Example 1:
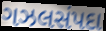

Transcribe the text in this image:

ગઝલસંપદા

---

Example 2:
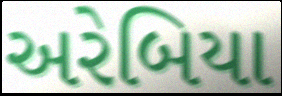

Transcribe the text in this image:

અરેબિયા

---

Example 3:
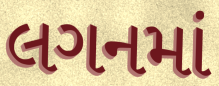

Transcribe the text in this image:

લગનમાં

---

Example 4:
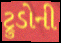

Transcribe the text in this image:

ટ્રુડોની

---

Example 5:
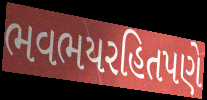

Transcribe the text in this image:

ભવભયરહિતપણે